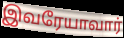
இவரேயாவார்